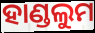
ହାଣ୍ଡଲୁମ